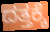
ದತ್ತಕ್ಕೆ